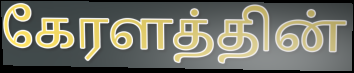
கேரளத்தின்